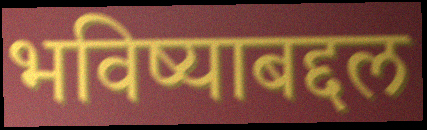
भविष्याबद्दल